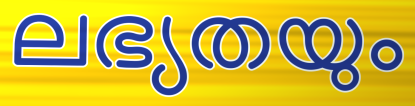
ലഭ്യതയും